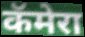
कॅमेरा